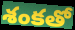
శంకతో